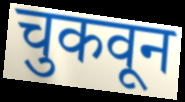
चुकवून